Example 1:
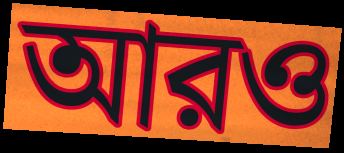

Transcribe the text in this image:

আরও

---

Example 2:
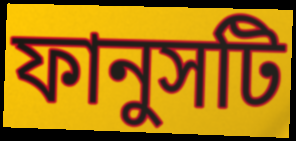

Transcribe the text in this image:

ফানুসটি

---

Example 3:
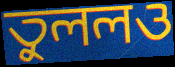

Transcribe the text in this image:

তুললও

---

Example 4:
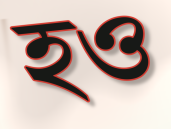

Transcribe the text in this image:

হও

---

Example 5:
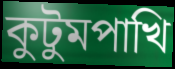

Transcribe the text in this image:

কুটুমপাখি